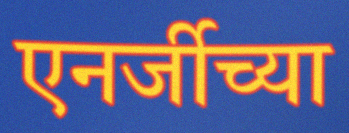
एनर्जीच्या